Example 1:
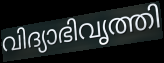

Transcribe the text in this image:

വിദ്യാഭിവൃത്തി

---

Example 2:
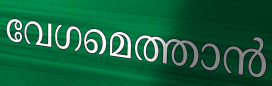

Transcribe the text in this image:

വേഗമെത്താൻ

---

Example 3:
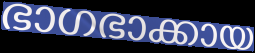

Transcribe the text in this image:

ഭാഗഭാക്കായ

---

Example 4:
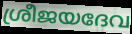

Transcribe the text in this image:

ശ്രീജയദേവ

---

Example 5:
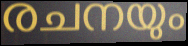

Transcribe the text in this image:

രചനയും